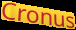
Cronus